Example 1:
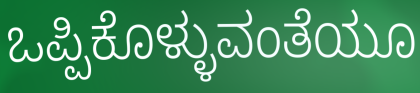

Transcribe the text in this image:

ಒಪ್ಪಿಕೊಳ್ಳುವಂತೆಯೂ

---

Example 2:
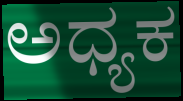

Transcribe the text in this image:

ಅಧ್ಯಕ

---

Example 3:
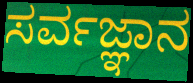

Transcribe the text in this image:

ಸರ್ವಜ್ಞಾನ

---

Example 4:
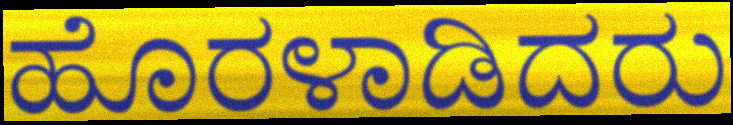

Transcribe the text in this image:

ಹೊರಳಾಡಿದರು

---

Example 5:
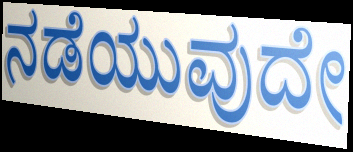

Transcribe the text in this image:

ನಡೆಯುವುದೇ